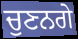
ਚੁਣਨਗੇ